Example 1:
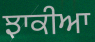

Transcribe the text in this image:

ਝਾਕੀਆ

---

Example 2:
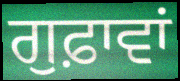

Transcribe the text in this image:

ਗੁਫ਼ਾਵਾਂ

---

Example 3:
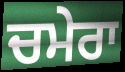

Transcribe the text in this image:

ਚਮੇਰਾ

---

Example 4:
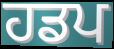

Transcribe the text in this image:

ਹਡਪ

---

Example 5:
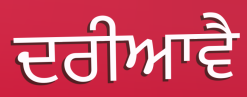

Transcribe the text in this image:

ਦਰੀਆਵੈ